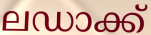
ലഡാക്ക്